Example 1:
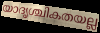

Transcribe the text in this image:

യാദൃശ്ചികതയല്ല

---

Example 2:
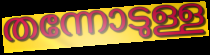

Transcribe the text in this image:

തന്നോടുള്ള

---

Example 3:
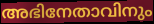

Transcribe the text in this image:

അഭിനേതാവിനും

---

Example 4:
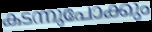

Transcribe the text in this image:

കടന്നുപോക്കും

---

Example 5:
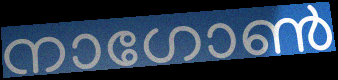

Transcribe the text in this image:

നാഗോൺ